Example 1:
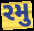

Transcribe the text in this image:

રમુ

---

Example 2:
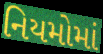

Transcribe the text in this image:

નિયમોમાં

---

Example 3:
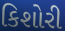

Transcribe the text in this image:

કિશોરી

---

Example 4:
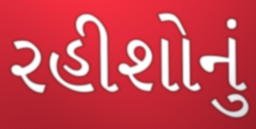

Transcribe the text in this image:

રહીશોનું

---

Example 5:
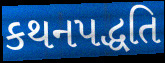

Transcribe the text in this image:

કથનપદ્ધતિ